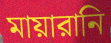
মায়ারানি